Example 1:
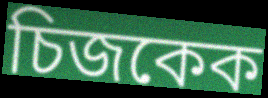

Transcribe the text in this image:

চিজকেক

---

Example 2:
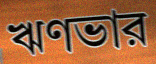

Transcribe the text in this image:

ঋণভার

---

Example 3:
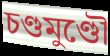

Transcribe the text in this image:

চণ্ডমুণ্ডৌ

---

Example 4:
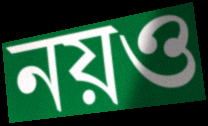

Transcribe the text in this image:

নয়ও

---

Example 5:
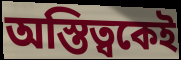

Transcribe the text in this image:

অস্তিত্বকেই